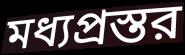
মধ্যপ্রস্তর